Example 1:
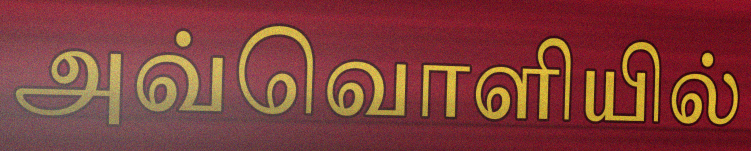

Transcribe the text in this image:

அவ்வொளியில்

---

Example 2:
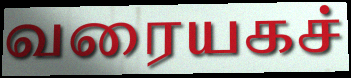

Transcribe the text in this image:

வரையகச்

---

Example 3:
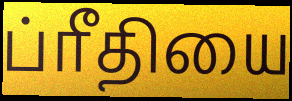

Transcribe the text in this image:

ப்ரீதியை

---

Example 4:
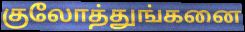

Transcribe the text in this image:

குலோத்துங்கனை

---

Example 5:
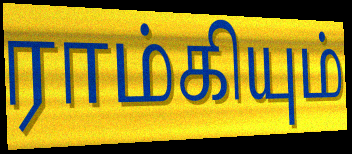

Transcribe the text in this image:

ராம்கியும்